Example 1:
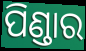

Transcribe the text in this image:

ପିଣ୍ଡାର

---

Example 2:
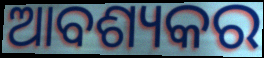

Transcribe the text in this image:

ଆବଶ୍ୟକର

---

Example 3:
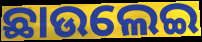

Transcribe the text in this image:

ଛାଉଲେଇ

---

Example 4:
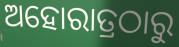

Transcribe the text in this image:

ଅହୋରାତ୍ରଠାରୁ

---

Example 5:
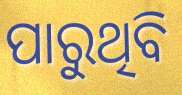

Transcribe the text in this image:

ପାରୁଥିବି